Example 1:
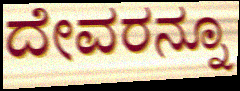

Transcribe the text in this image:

ದೇವರನ್ನೂ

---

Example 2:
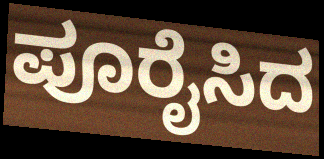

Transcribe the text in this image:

ಪೂರೈಸಿದ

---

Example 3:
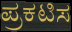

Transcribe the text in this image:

ಪ್ರಕಟಿಸ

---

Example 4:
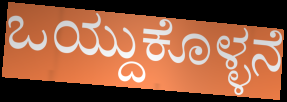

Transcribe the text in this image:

ಒಯ್ದುಕೊಳ್ಳನೆ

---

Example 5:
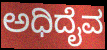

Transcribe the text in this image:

ಅಧಿದೈವ